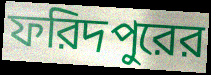
ফরিদপুরের